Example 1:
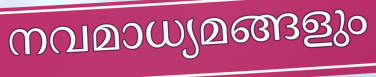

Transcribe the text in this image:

നവമാധ്യമങ്ങളും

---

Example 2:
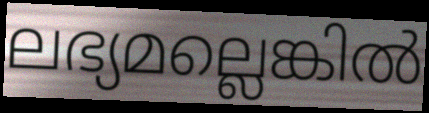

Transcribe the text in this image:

ലഭ്യമല്ലെങ്കിൽ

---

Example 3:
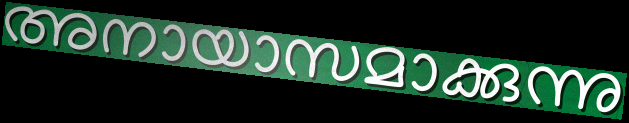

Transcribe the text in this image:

അനായാസമാക്കുന്നു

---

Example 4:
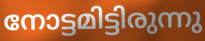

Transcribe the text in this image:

നോട്ടമിട്ടിരുന്നു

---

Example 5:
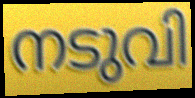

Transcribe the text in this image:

നടുവി